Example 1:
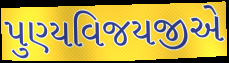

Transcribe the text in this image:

પુણ્યવિજયજીએ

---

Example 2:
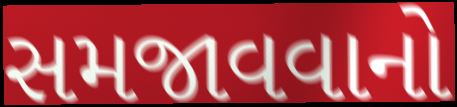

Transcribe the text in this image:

સમજાવવાનો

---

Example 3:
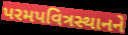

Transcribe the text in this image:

પરમપવિત્રસ્થાનને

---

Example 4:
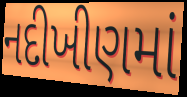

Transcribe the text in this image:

નદીખીણમાં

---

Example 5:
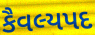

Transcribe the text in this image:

કૈવલ્યપદ